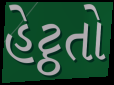
હેટ્ઠતો